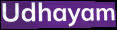
Udhayam